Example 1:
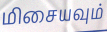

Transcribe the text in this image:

மிசையவும்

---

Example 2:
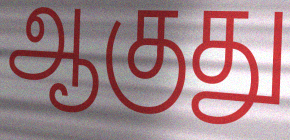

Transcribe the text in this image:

ஆகுது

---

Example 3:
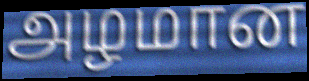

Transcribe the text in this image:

அழமான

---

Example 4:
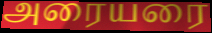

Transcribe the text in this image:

அரையரை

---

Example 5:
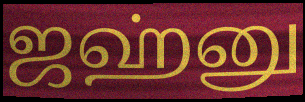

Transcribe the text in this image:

ஜஹ்னு